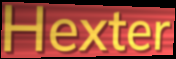
Hexter